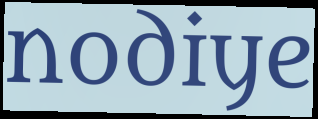
nodiye